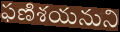
ఫణిశయనుని